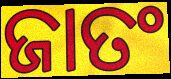
ଜାତଂ